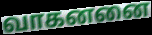
வாகனனை